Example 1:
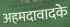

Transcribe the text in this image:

अहमदावादके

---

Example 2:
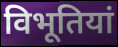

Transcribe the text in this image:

विभूतियां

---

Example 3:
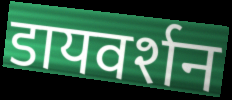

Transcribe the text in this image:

डायवर्शन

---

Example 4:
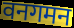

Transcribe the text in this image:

वनगमन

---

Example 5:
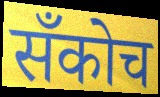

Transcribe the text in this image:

सँकोच